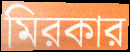
মিরকার